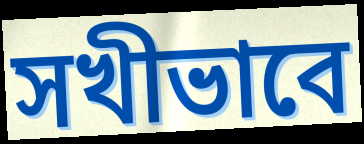
সখীভাবে